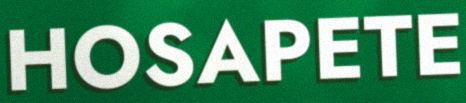
HOSAPETE